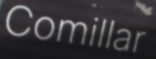
Comillar